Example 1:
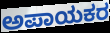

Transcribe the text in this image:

ಅಪಾಯಕರ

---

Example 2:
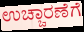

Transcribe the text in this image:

ಉಚ್ಚಾರಣೆಗೆ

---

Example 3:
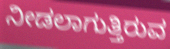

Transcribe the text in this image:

ನೀಡಲಾಗುತ್ತಿರುವ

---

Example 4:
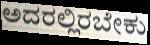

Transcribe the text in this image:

ಅದರಲ್ಲಿರಬೇಕು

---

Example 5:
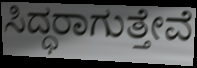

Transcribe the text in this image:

ಸಿದ್ಧರಾಗುತ್ತೇವೆ